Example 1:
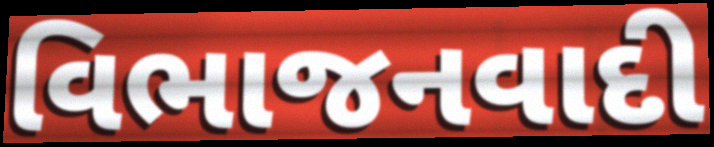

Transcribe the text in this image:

વિભાજનવાદી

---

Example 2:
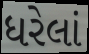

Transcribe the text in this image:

ધરેલાં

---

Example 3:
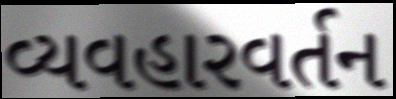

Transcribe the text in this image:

વ્યવહારવર્તન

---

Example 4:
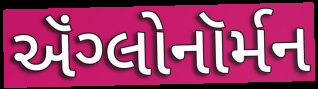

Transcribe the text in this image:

ઍંગ્લોનૉર્મન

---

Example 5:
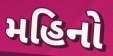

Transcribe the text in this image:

મહિનો